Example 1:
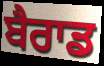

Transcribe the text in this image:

ਬੈਰਾਡ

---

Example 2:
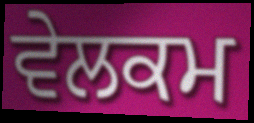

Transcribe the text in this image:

ਵੇਲਕਮ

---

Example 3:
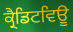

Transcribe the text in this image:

ਕ੍ਰੈਡਿਟਵਿਊ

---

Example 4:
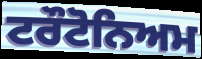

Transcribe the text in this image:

ਟਰੌਟੋਨਿਅਮ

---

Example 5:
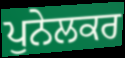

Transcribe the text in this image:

ਪੁਨੇਲਕਰ